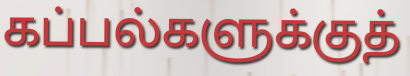
கப்பல்களுக்குத்